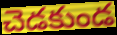
చెడకుండ